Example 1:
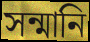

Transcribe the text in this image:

সন্মানি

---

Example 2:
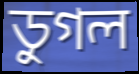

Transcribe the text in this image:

ডুগল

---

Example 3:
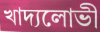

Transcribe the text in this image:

খাদ্যলোভী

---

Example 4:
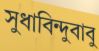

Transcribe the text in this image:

সুধাবিন্দুবাবু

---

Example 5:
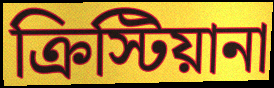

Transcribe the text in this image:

ক্রিস্টিয়ানা